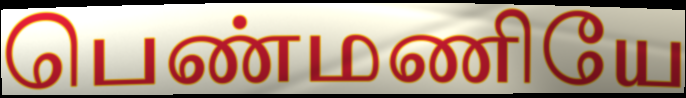
பெண்மணியே